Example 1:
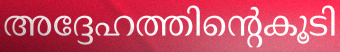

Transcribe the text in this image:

അദ്ദേഹത്തിന്റെകൂടി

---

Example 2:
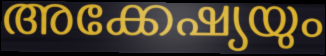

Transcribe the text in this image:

അക്കേഷ്യയും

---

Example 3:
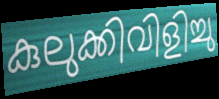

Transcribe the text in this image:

കുലുക്കിവിളിച്ചു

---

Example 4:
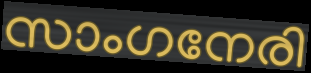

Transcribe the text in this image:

സാംഗനേരി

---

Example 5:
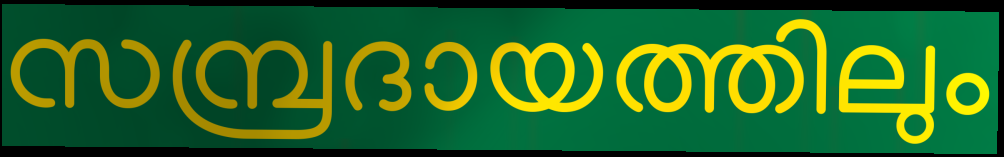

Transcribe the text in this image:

സമ്പ്രദായത്തിലും